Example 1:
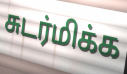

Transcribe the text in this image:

சுடர்மிக்க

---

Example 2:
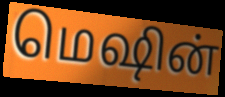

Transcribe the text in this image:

மெஷின்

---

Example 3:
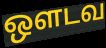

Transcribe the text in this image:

ஔடவ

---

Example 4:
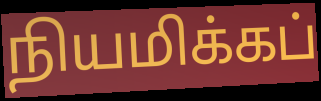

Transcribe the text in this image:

நியமிக்கப்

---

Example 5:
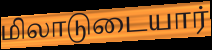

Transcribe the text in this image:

மிலாடுடையார்